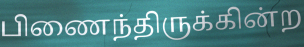
பிணைந்திருக்கின்ற